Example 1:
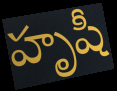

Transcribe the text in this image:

హృషీ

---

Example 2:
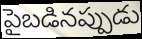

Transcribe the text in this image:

పైబడినప్పుడు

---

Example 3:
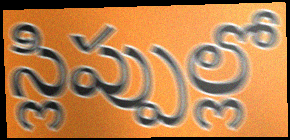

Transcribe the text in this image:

స్లిప్పుల్లో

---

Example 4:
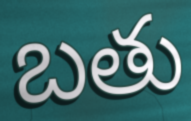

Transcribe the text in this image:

బతు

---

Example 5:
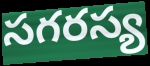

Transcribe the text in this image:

సగరస్య